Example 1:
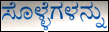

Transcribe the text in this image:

ಸೊಳ್ಳೆಗಳನ್ನು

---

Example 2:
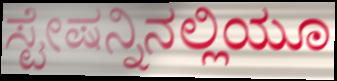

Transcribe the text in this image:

ಸ್ಟೇಷನ್ನಿನಲ್ಲಿಯೂ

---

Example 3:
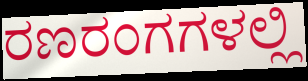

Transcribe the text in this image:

ರಣರಂಗಗಳಲ್ಲಿ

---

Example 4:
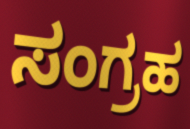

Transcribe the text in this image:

ಸಂಗ್ರಹ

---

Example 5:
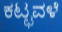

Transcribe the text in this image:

ಕಟ್ಟವಳೆ